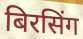
बिरसिंग